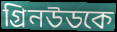
গ্রিনউডকে